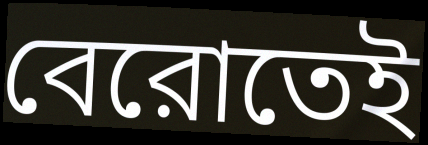
বেরোতেই